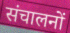
संचालनों